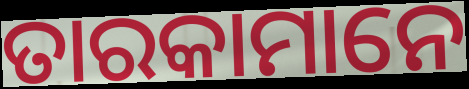
ତାରକାମାନେ